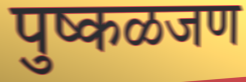
पुष्कळजण